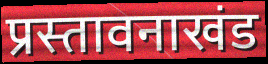
प्रस्तावनाखंड